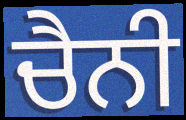
ਚੈਨੀ